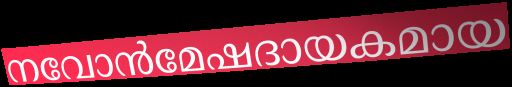
നവോൻമേഷദായകമായ